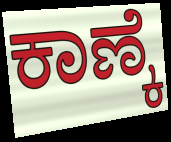
ಕಾಣ್ಕೆ